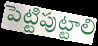
పెట్టిపుట్టాలి